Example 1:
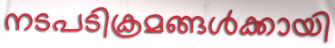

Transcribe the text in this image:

നടപടിക്രമങ്ങൾക്കായി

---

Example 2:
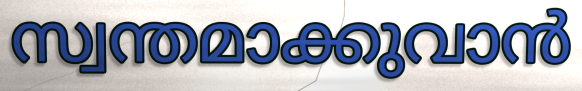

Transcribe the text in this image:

സ്വന്തമാക്കുവാൻ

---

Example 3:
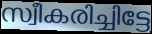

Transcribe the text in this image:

സ്വീകരിച്ചിട്ടേ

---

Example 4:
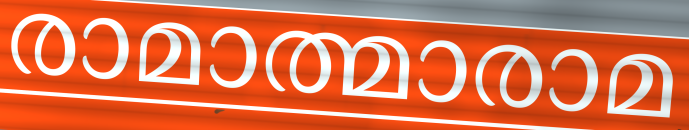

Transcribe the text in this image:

രാമാത്മാരാമ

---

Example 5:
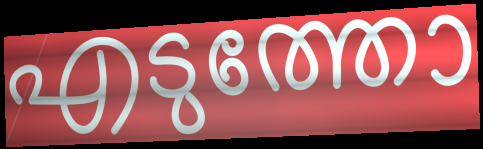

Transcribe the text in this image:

എടുത്തോ